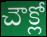
చౌక్లో